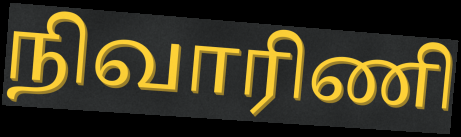
நிவாரிணி